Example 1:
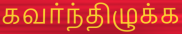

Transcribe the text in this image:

கவர்ந்திழுக்க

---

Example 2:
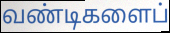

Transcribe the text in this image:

வண்டிகளைப்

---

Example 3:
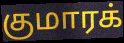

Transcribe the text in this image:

குமாரக்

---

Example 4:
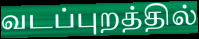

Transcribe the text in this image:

வடப்புறத்தில்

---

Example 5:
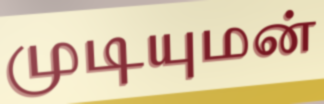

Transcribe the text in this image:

முடியுமன்